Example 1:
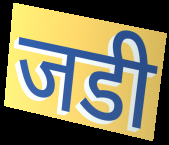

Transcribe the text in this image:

जडी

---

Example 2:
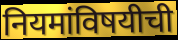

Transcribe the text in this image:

नियमांविषयीची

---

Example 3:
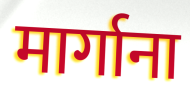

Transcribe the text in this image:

मार्गाना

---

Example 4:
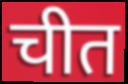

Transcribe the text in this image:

चीत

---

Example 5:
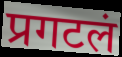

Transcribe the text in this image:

प्रगटलं